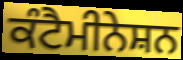
ਕੰਟੈਮੀਨੇਸ਼ਨ